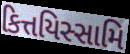
કિત્તયિસ્સામિ